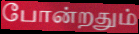
போன்றதும்